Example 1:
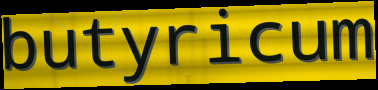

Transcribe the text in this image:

butyricum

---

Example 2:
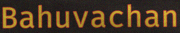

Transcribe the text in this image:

Bahuvachan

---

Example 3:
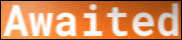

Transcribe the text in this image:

Awaited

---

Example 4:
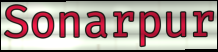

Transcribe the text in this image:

Sonarpur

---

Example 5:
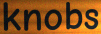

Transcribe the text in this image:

knobs